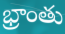
భ్రాంతు